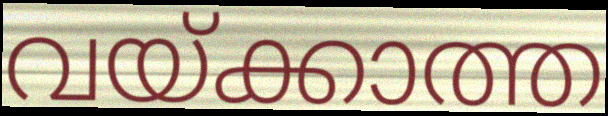
വയ്ക്കാത്ത